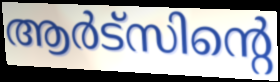
ആർട്സിന്റെ